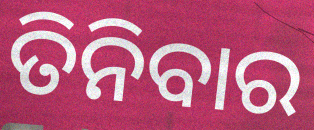
ତିନିବାର